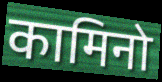
कामिनो